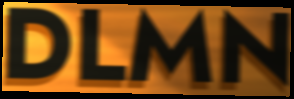
DLMN